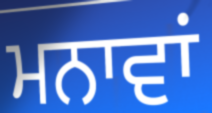
ਮਨਾਵਾਂ